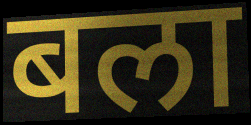
बला